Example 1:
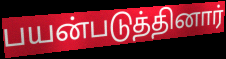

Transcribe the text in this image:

பயன்படுத்தினார்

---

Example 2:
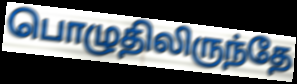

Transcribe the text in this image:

பொழுதிலிருந்தே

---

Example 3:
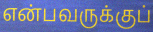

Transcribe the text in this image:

என்பவருக்குப்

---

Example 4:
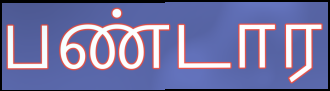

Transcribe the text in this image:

பண்டார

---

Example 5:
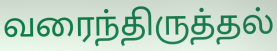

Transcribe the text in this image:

வரைந்திருத்தல்